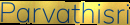
Parvathisri